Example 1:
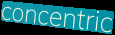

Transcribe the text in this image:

concentric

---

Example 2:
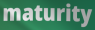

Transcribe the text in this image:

maturity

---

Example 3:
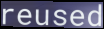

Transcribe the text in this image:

reused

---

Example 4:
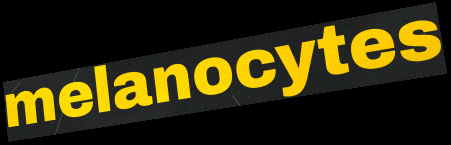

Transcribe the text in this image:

melanocytes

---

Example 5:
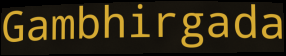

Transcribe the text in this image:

Gambhirgada